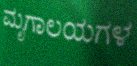
ಮೃಗಾಲಯಗಳ